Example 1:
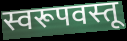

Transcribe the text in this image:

स्वरूपवस्तू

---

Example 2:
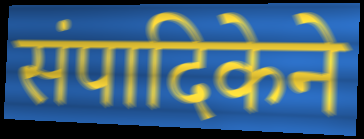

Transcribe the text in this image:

संपादिकेने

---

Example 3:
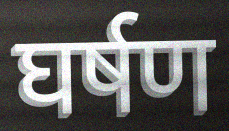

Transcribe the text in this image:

घर्षण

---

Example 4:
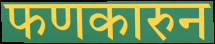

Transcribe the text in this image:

फणकारुन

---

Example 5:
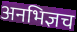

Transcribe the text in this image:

अनभिज्ञच